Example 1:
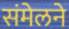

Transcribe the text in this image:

संमेलने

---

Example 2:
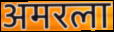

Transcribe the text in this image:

अमरला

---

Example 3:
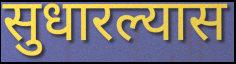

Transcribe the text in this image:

सुधारल्यास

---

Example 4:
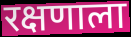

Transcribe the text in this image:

रक्षणाला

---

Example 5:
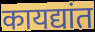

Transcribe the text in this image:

कायद्यांत